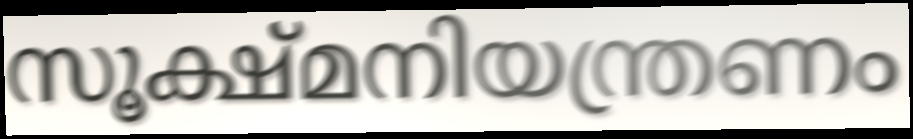
സൂക്ഷ്മനിയന്ത്രണം